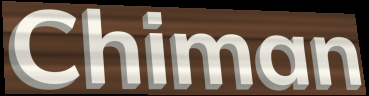
Chiman